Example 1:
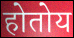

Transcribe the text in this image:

होतोय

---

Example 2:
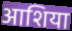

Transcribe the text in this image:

आशिया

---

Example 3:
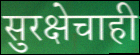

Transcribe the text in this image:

सुरक्षेचाही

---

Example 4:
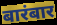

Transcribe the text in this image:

बारंबार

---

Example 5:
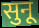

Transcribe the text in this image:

सुनू